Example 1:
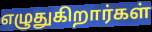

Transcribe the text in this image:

எழுதுகிறார்கள்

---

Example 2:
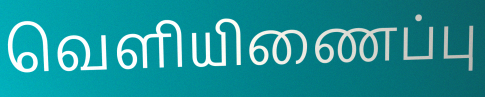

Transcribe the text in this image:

வெளியிணைப்பு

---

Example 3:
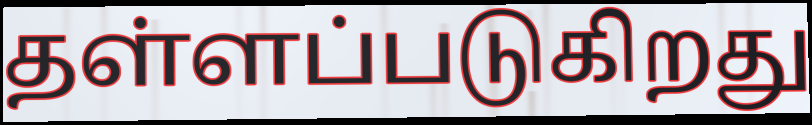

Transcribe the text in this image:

தள்ளப்படுகிறது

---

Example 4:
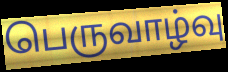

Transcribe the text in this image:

பெருவாழ்வு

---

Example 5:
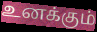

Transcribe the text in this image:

உனக்கும்